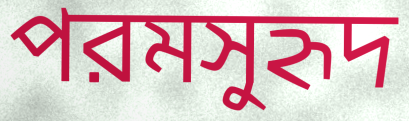
পরমসুহৃদ